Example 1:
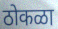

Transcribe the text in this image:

ठोकळा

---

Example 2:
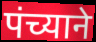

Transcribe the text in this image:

पंच्याने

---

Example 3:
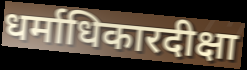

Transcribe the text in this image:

धर्माधिकारदीक्षा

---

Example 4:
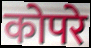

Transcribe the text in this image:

कोपरे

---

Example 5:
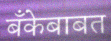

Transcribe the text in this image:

बँकेबाबत